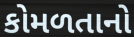
કોમળતાનો